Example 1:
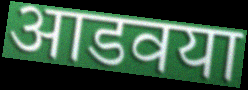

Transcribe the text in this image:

आडवया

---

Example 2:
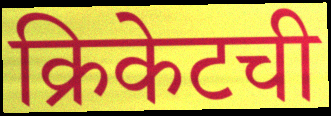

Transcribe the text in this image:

क्रिकेटची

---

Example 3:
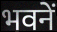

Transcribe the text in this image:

भवनें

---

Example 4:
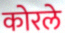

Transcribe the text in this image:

कोरले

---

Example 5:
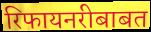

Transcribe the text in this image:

रिफायनरीबाबत